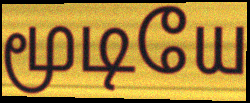
மூடியே